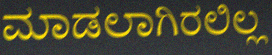
ಮಾಡಲಾಗಿರಲಿಲ್ಲ